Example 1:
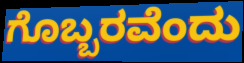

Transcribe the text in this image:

ಗೊಬ್ಬರವೆಂದು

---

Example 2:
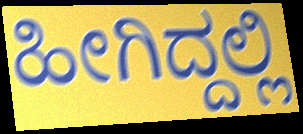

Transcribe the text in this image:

ಹೀಗಿದ್ದಲ್ಲಿ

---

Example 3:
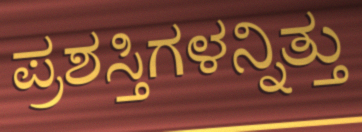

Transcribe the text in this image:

ಪ್ರಶಸ್ತಿಗಳನ್ನಿತ್ತು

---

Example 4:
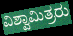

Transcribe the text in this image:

ವಿಶ್ವಾಮಿತ್ರರು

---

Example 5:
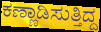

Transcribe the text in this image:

ಕಣ್ಣಾಡಿಸುತ್ತಿದ್ದ